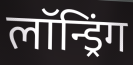
लॉन्ड्रिंग